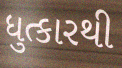
ધુત્કારથી